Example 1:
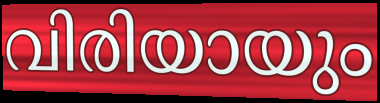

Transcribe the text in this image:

വിരിയായും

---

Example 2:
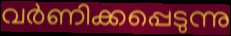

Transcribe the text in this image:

വർണിക്കപ്പെടുന്നു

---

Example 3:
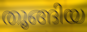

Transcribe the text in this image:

തൂങ്ങിയ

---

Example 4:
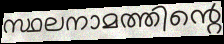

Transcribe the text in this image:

സ്ഥലനാമത്തിന്റെ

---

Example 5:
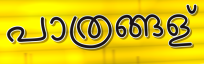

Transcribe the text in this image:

പാത്രങ്ങള്